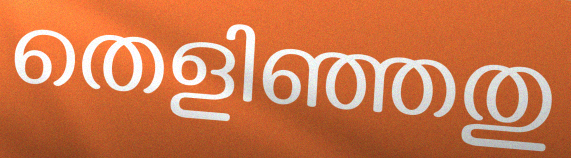
തെളിഞ്ഞതു